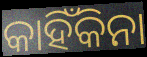
କାହିଁକିନା